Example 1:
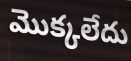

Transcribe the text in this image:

మొక్కలేదు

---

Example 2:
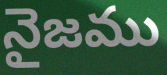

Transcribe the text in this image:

నైజము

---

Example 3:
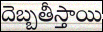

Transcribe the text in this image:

దెబ్బతీస్తాయి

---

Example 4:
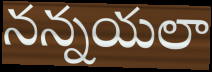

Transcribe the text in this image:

నన్నయలా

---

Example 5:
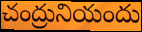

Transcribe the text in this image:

చంద్రునియందు